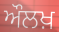
ਔਲਖ਼